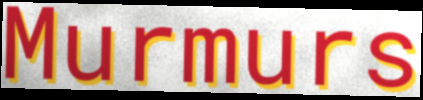
Murmurs